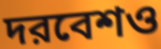
দরবেশও